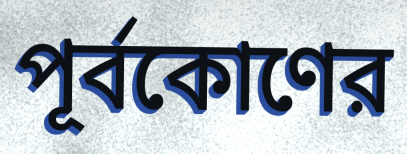
পূর্বকোণের